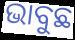
ଭାବୁଛ